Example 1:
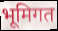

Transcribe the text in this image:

भूमिगत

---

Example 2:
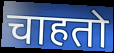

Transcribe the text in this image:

चाहतो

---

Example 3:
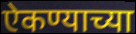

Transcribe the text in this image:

ऐकण्याच्या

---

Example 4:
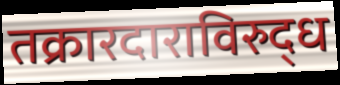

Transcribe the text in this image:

तक्रारदाराविरुद्ध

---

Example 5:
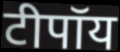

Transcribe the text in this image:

टीपॉय